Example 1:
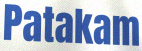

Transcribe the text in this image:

Patakam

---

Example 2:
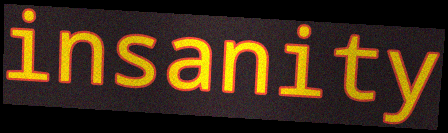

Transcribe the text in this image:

insanity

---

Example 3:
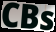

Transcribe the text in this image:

CBs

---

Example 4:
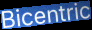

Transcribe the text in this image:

Bicentric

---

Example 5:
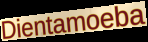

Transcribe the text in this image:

Dientamoeba